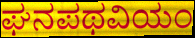
ಘನಪಥವಿಯಂ